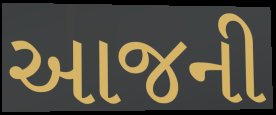
આજની